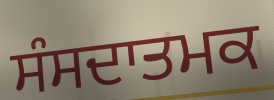
ਸੰਸਦਾਤਮਕ